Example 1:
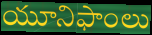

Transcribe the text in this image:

యూనిఫాంలు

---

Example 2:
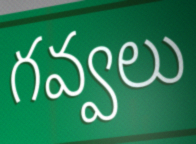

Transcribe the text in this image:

గవ్వలు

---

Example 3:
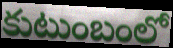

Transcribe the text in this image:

కుటుంబంలో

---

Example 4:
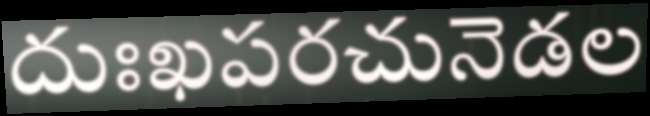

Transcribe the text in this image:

దుఃఖపరచునెడల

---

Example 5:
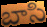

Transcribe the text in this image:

బాసి